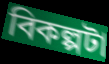
বিকল্পটা